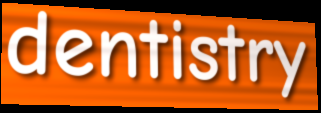
dentistry